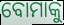
ବୋମାକୁ